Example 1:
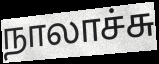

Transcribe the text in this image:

நாலாச்சு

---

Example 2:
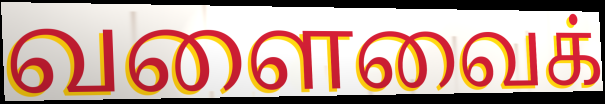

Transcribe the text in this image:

வளைவைக்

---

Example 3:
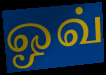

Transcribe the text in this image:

ஓவ்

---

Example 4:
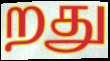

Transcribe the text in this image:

றது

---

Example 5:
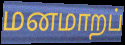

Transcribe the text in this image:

மனமாறப்